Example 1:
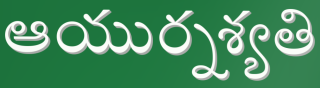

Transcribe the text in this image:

ఆయుర్నశ్యతి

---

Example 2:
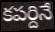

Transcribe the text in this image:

కపర్దినే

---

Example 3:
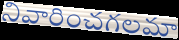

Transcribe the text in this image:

నివారించగలమా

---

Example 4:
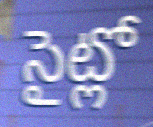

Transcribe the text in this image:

సైట్లో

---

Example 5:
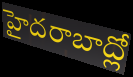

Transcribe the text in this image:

హైదరాబాద్లో